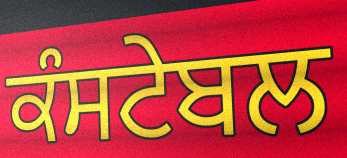
ਕੰਸਟੇਬਲ